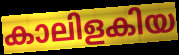
കാലിളകിയ